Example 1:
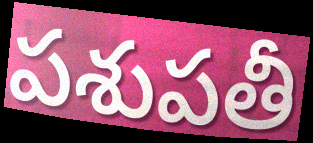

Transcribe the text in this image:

పశుపతీ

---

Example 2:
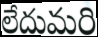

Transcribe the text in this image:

లేదుమరి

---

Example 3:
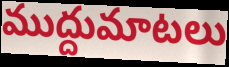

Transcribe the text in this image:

ముద్దుమాటలు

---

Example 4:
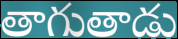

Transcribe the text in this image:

తాగుతాడు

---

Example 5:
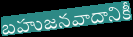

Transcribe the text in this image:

బహుజనవాదానికీ